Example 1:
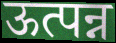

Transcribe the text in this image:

ऊत्पन्न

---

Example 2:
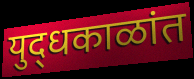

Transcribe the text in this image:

युद्धकाळांत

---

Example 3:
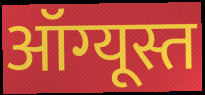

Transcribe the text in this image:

ऑग्यूस्त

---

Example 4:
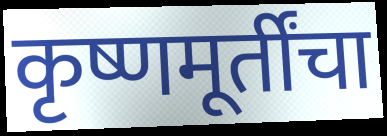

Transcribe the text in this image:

कृष्णमूर्तींचा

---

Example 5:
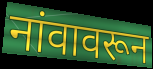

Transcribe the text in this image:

नांवावरून